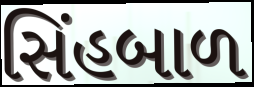
સિંહબાળ